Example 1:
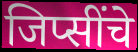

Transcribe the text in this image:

जिप्सींचे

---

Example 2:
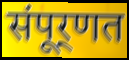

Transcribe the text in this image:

संपूर्णत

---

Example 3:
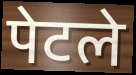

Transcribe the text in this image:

पेटले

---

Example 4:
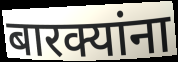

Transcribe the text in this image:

बारक्यांना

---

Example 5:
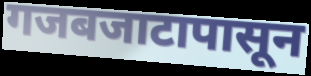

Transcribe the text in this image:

गजबजाटापासून